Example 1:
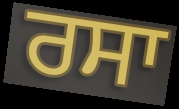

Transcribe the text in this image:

ਰਸਾ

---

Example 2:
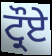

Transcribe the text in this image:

ਟ੍ਰੌਏ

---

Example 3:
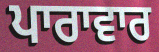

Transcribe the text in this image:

ਪਾਰਾਵਾਰ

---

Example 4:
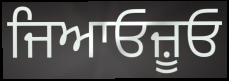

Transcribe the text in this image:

ਜਿਆਓਜ਼ੂਓ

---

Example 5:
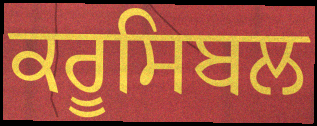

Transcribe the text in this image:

ਕਰੂਸਿਬਲ